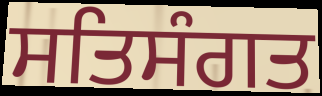
ਸਤਿਸੰਗਤ